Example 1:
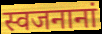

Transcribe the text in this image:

स्वजनानां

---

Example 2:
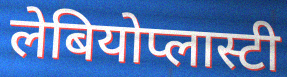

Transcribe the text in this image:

लेबियोप्लास्टी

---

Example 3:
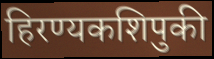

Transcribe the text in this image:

हिरण्यकशिपुकी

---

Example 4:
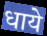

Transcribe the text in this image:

धाये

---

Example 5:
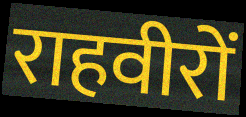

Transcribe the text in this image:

राहवीरों